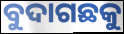
ବୁଦାଗଛକୁ